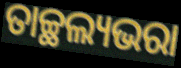
ତାଚ୍ଛଲ୍ୟଭରା